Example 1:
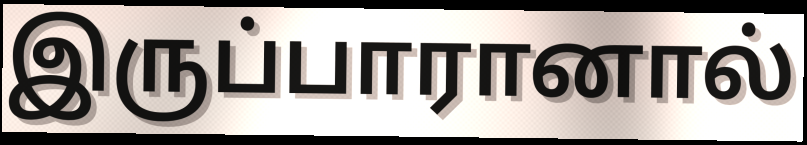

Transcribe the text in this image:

இருப்பாரானால்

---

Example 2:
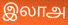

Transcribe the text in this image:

இலாஅ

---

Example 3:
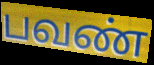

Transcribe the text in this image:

பவண்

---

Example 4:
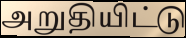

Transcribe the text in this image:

அறுதியிட்டு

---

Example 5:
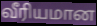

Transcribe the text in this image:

வீரியமான